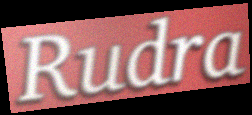
Rudra